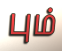
பும்